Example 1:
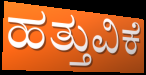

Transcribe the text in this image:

ಹತ್ತುವಿಕೆ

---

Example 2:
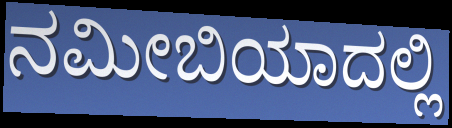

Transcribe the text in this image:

ನಮೀಬಿಯಾದಲ್ಲಿ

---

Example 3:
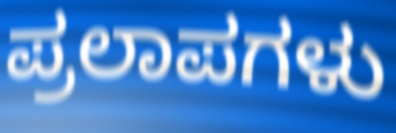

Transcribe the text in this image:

ಪ್ರಲಾಪಗಳು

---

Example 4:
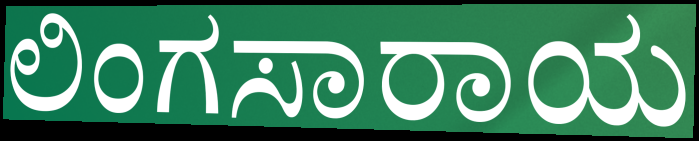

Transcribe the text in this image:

ಲಿಂಗಸಾರಾಯ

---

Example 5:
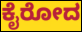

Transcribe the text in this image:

ಕೈರೋದ